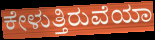
ಕೇಳುತ್ತಿರುವೆಯಾ